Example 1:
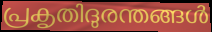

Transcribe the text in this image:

പ്രകൃതിദുരന്തങ്ങൾ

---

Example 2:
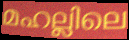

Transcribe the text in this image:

മഹല്ലിലെ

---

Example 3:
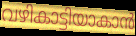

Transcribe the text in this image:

വഴികാട്ടിയാകാൻ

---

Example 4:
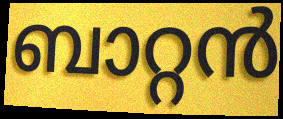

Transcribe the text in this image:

ബാറ്റൻ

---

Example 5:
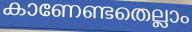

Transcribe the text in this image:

കാണേണ്ടതെല്ലാം